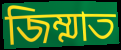
জিম্মাত